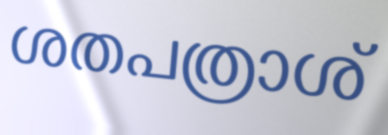
ശതപത്രാശ്